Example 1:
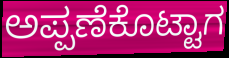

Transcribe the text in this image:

ಅಪ್ಪಣೆಕೊಟ್ಟಾಗ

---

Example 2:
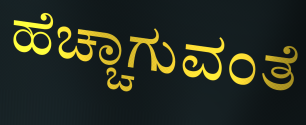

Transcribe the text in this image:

ಹೆಚ್ಚಾಗುವಂತೆ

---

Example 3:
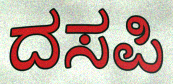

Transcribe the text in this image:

ದಸಪಿ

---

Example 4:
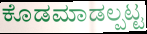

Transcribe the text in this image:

ಕೊಡಮಾಡಲ್ಪಟ್ಟ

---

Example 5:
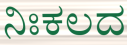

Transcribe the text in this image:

ನಿಃಕಲದ